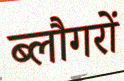
ब्लौगरों